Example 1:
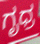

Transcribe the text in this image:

ಗೃಧ್ರ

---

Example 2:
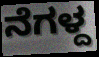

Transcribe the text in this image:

ನೆಗಳ್ದ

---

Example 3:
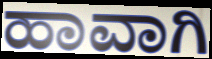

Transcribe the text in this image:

ಹಾವಾಗಿ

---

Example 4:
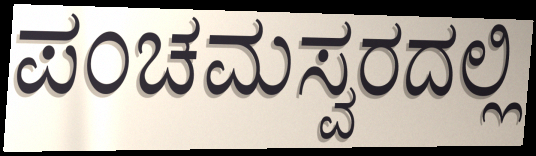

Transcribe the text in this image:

ಪಂಚಮಸ್ವರದಲ್ಲಿ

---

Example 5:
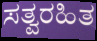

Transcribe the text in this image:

ಸತ್ವರಹಿತ